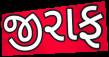
જીરાફ